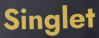
Singlet